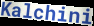
Kalchini